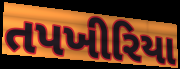
તપખીરિયા